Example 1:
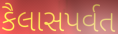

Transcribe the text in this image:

કૈલાસપર્વત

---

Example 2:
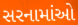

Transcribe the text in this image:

સરનામાંઓ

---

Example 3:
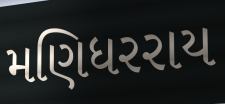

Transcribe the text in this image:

મણિધરરાય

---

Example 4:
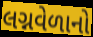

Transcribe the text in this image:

લગ્નવેળાનો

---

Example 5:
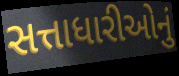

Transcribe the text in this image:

સત્તાધારીઓનું